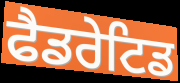
ਫੈਡਰੇਟਿਡ